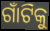
ଗାଁଟିକୁ